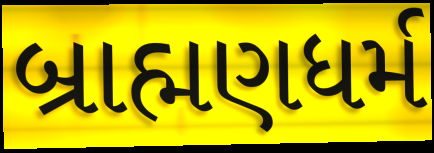
બ્રાહ્મણધર્મ